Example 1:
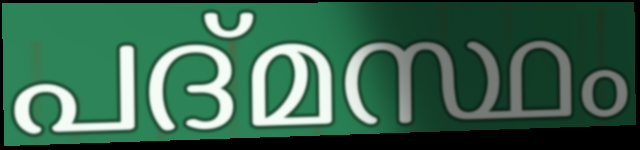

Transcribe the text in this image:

പദ്മസ്ഥം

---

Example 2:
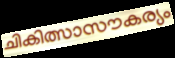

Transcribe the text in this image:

ചികിത്സാസൗകര്യം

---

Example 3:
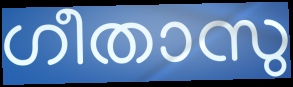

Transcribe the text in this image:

ഗീതാസു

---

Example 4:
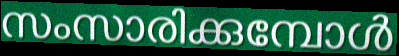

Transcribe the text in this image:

സംസാരിക്കുമ്പോൾ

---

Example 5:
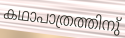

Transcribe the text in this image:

കഥാപാത്രത്തിനു്